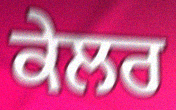
ਕੇਲਰ